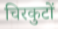
चिरकुटों